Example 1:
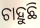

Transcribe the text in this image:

ଚାହୁଛି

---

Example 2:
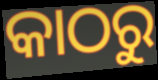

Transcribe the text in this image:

କାଠରୁ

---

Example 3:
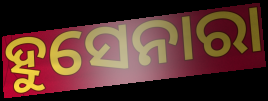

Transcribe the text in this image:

ହୁସେନାରା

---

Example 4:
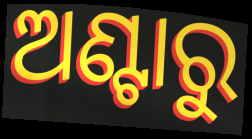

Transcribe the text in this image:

ଅଣ୍ଟାରୁ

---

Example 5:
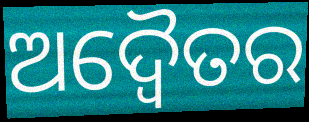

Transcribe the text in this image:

ଅଦ୍ଵୈତର